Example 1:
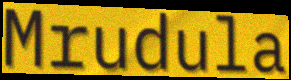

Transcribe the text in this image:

Mrudula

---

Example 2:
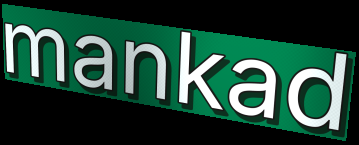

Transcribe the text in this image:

mankad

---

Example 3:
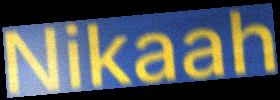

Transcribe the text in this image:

Nikaah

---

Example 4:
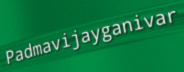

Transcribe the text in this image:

Padmavijayganivar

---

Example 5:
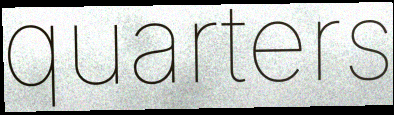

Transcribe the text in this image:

quarters